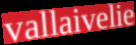
vallaivelie